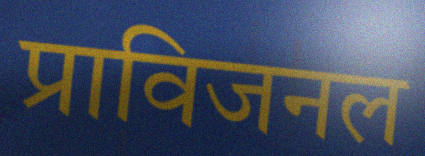
प्राविजनल